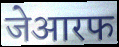
जेआरफ